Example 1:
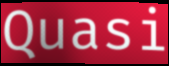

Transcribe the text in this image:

Quasi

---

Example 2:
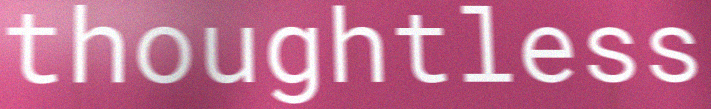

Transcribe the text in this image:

thoughtless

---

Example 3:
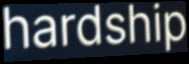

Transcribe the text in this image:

hardship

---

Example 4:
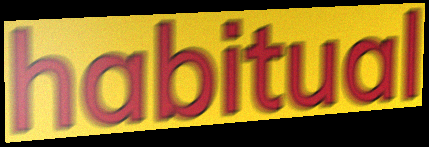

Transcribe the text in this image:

habitual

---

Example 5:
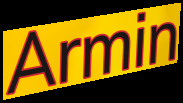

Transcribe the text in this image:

Armin